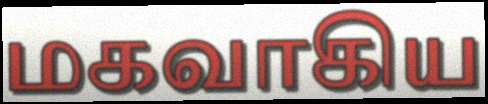
மகவாகிய